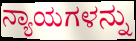
ನ್ಯಾಯಗಳನ್ನು